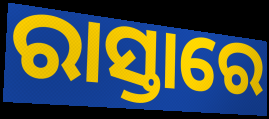
ରାସ୍ତାରେ